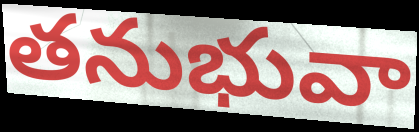
తనుభువా